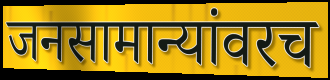
जनसामान्यांवरच